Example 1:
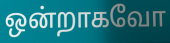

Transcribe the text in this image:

ஒன்றாகவோ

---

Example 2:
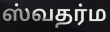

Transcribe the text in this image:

ஸ்வதர்ம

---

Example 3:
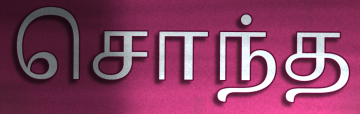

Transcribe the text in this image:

சொந்த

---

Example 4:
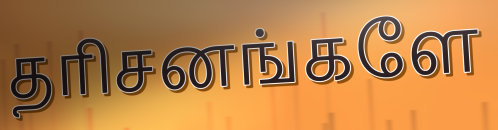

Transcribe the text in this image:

தரிசனங்களே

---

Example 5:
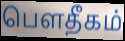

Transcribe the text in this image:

பௌதீகம்